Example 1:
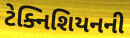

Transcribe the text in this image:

ટેક્નિશિયનની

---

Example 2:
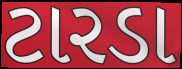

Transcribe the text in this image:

ટારડા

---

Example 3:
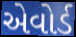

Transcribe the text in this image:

એવોર્ડ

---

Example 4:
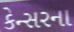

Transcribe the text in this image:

કેન્સરના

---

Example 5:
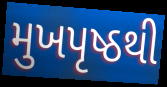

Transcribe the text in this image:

મુખપૃષ્ઠથી